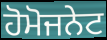
ਹੋਮੋਜਨੇਟ